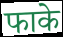
फाके